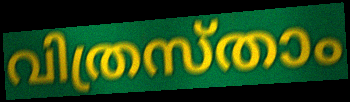
വിത്രസ്താം